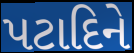
પટાદિને